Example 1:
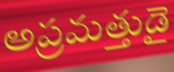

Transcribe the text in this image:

అప్రమత్తుడై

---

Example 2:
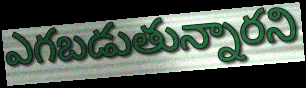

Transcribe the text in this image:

ఎగబడుతున్నారని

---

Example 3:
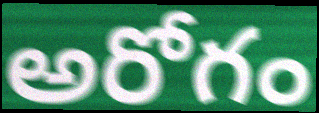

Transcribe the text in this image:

అరోగం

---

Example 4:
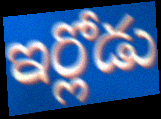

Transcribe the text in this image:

ఇర్లోడు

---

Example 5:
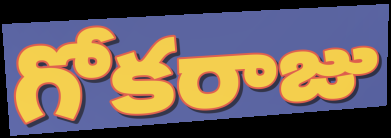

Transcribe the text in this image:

గోకరాజు